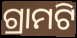
ଗ୍ରାମଟି